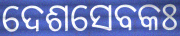
ଦେଶସେବକଃ